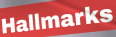
Hallmarks